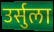
उर्सुला